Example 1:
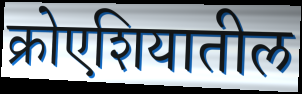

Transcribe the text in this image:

क्रोएशियातील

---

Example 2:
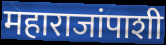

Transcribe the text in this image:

महाराजांपाशी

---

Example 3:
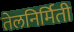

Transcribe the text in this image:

तेलनिर्मिती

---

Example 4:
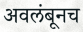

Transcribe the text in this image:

अवलंबूनच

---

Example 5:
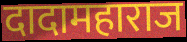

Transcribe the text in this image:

दादामहाराज